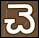
చె